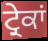
ਟ੍ਰੇਕਾਂ